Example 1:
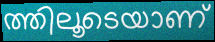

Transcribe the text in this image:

ത്തിലൂടെയാണ്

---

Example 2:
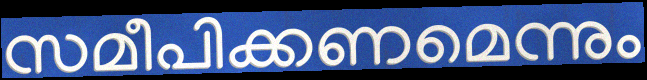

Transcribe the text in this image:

സമീപിക്കണമെന്നും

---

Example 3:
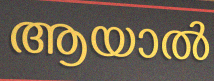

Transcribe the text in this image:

ആയാൽ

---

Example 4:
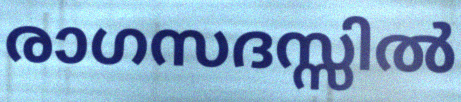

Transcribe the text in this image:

രാഗസദസ്സിൽ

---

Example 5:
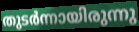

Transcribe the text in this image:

തുടർന്നായിരുന്നു